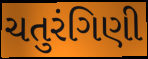
ચતુરંગિણી